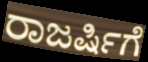
ರಾಜರ್ಷಿಗೆ